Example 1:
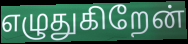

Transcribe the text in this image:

எழுதுகிறேன்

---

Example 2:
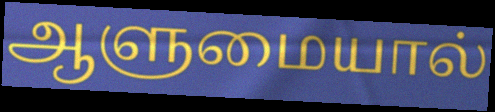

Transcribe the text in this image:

ஆளுமையால்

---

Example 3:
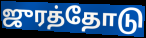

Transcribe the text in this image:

ஜுரத்தோடு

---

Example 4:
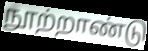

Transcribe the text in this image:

நூற்றாண்டு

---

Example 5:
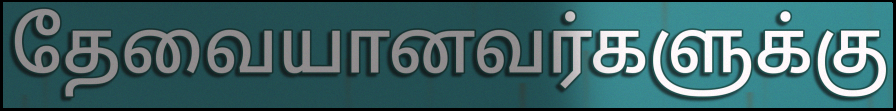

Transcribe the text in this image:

தேவையானவர்களுக்கு